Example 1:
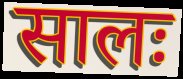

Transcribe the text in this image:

सालः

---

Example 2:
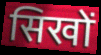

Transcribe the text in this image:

सिखों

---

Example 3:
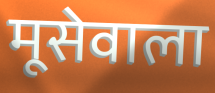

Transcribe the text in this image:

मूसेवाला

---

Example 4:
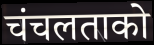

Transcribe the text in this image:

चंचलताको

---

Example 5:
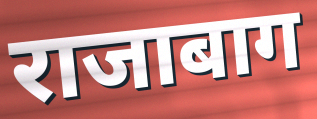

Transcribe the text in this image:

राजाबाग